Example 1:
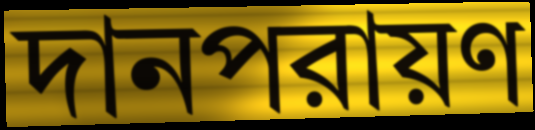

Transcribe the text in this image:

দানপরায়ণ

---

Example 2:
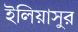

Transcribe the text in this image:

ইলিয়াসুর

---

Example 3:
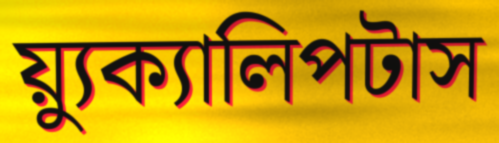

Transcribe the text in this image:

য়্যুক্যালিপটাস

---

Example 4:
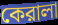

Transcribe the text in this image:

কেরালা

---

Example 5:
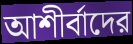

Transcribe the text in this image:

আশীর্বাদের